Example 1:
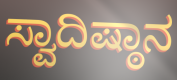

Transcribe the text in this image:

ಸ್ವಾದಿಷ್ಠಾನ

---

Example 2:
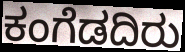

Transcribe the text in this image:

ಕಂಗೆಡದಿರು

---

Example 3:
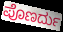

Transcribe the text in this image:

ಪೊಣರ್ದು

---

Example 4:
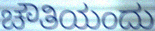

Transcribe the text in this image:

ಚೌತಿಯಂದು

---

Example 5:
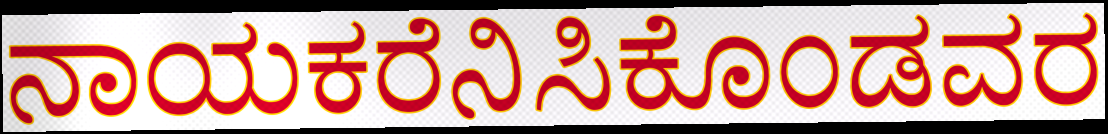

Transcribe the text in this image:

ನಾಯಕರೆನಿಸಿಕೊಂಡವರ